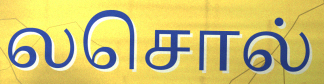
லசொல்